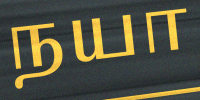
நயா